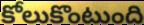
కోలుకొంటుంది